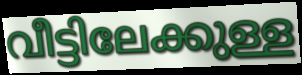
വീട്ടിലേക്കുള്ള